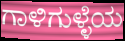
ಗಾಳಿಗುಳ್ಳೆಯ